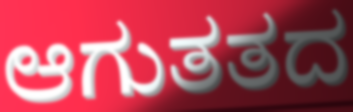
ಆಗುತತದ